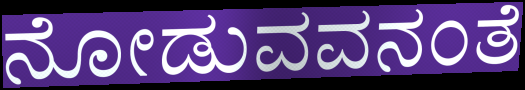
ನೋಡುವವನಂತೆ